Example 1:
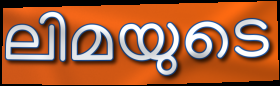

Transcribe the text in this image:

ലിമയുടെ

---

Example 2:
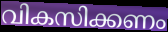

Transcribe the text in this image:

വികസിക്കണം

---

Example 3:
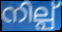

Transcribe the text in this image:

നില്പ്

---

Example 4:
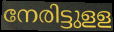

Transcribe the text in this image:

നേരിട്ടുളള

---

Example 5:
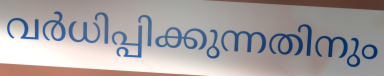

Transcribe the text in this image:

വർധിപ്പിക്കുന്നതിനും